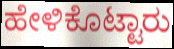
ಹೇಳಿಕೊಟ್ಟಾರು